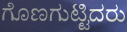
ಗೊಣಗುಟ್ಟಿದರು